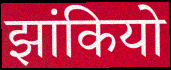
झांकियो